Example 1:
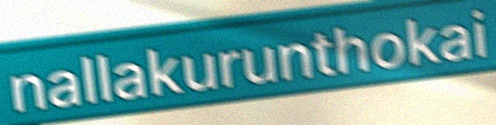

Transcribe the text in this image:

nallakurunthokai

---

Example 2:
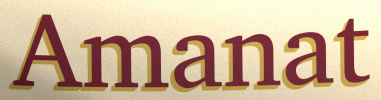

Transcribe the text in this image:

Amanat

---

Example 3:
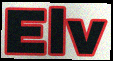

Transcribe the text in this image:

Elv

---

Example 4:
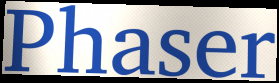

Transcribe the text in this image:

Phaser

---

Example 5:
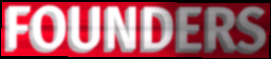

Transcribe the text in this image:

FOUNDERS